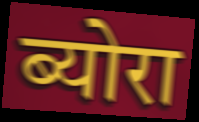
ब्योरा